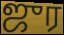
ஜுர